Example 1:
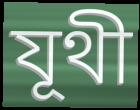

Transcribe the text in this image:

যূথী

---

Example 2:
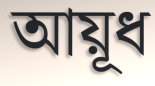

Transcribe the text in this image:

আয়ূধ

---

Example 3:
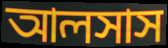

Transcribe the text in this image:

আলসাস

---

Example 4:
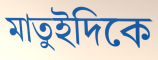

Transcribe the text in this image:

মাতুইদিকে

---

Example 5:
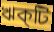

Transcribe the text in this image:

ঋক্‌টি